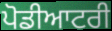
ਪੋਡੀਆਟਰੀ